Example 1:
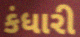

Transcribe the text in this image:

કંધારી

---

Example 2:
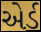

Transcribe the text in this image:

એર્ડ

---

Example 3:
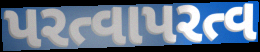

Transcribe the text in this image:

પરત્વાપરત્વ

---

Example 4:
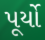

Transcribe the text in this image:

પૂર્યો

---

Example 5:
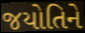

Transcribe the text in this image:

જયોતિને